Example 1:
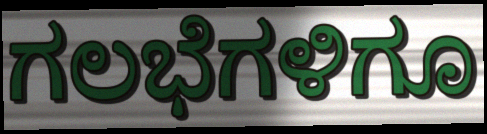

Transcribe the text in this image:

ಗಲಭೆಗಳಿಗೂ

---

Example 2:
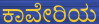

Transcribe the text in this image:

ಕಾವೇರಿಯ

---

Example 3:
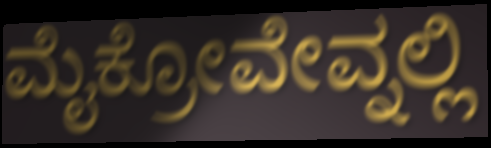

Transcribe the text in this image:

ಮೈಕ್ರೋವೇವ್ನಲ್ಲಿ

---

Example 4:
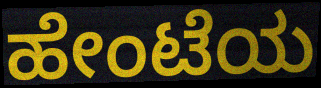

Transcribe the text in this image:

ಹೇಂಟೆಯ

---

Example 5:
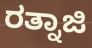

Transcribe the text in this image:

ರತ್ನಾಜಿ